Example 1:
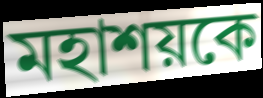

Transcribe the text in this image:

মহাশয়কে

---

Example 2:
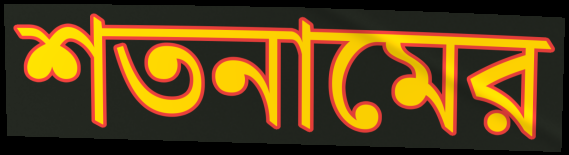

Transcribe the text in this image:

শতনামের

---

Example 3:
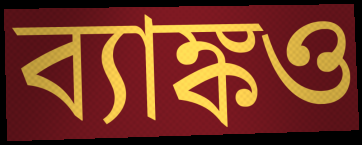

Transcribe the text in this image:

ব্যাঙ্কও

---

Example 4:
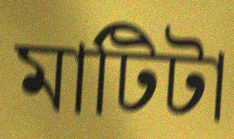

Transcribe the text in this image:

মাটিটা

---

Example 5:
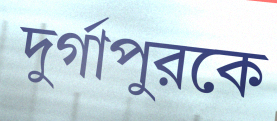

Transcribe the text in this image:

দুর্গাপুরকে